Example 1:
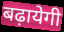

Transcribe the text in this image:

बढ़ायेगी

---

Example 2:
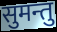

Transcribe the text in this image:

सुमन्तु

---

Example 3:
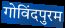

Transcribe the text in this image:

गोविंदपुरम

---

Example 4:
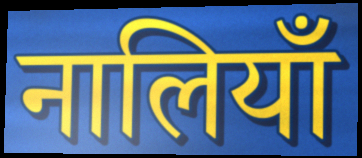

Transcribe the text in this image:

नालियाँ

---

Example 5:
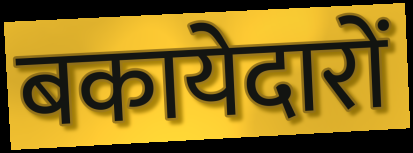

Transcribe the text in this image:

बकायेदारों